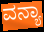
ವನ್ಯಾ